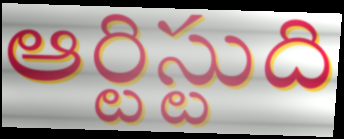
ఆర్టిస్టుది